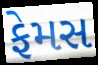
ફેમસ